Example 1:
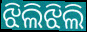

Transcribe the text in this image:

ଝିଲିଝିଲି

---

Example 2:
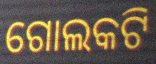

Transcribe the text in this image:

ଗୋଲକଟି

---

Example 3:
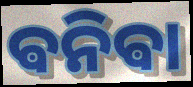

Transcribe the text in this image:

ଵନିଵା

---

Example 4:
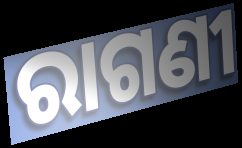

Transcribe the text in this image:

ରାଗଣୀ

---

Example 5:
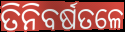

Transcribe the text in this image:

ତିନିବର୍ଷତଳେ